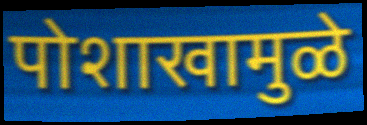
पोशाखामुळे